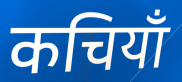
कचियाँ